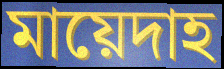
মায়েদাহ